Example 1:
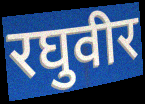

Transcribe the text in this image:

रघुवीर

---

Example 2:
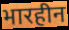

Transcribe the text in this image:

भारहीन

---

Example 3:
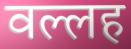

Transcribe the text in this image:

वल्लह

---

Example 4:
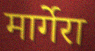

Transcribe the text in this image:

मार्गेरा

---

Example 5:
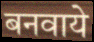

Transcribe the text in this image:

बनवाये